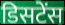
डिसटेंस